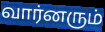
வார்னரும்